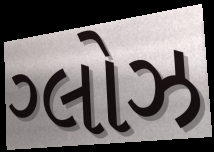
ગ્લોઝ